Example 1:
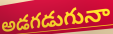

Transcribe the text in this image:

అడగడుగునా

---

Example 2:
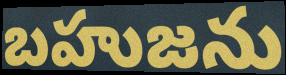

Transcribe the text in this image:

బహుజను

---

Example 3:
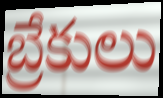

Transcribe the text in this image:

బ్రేకులు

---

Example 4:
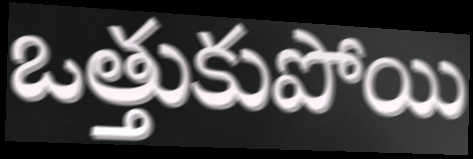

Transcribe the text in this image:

ఒత్తుకుపోయి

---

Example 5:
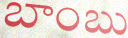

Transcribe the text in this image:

బాంబు